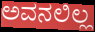
ಅವನಲಿಲ್ಲ